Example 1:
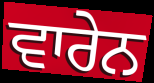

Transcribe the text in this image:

ਵਾਰੇਨ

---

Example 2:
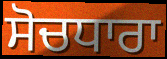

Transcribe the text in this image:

ਸੋਚਧਾਰਾ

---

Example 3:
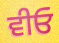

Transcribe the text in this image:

ਵੀਓ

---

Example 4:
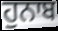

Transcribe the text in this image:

ਹੁਨਾਬ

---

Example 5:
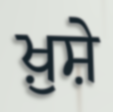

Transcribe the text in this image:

ਖ਼ੁਸ਼ੇ